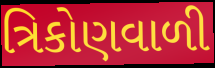
ત્રિકોણવાળી